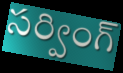
సర్వింగ్